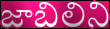
జాబిలిని